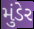
મુંડેર